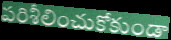
పరిశీలించుకోకుండా